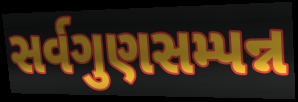
સર્વગુણસમ્પન્ન